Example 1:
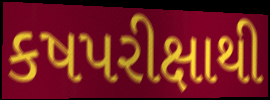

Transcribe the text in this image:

કષપરીક્ષાથી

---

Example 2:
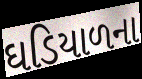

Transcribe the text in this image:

ઘડિયાળના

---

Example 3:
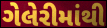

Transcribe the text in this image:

ગેલેરીમાંથી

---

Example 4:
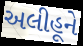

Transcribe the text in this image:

અલીહૂને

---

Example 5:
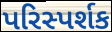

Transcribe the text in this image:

પરિસ્પર્શક